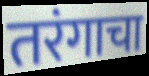
तरंगाचा